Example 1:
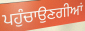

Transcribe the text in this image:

ਪਹੁੰਚਾਉਣਗੀਆਂ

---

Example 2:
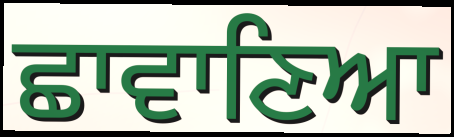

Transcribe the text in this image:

ਛਾਵਾਣਿਆ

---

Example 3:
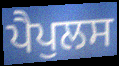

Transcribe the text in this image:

ਪੈਪੁਲਸ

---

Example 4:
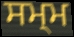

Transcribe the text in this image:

ਸਮ੍ਮ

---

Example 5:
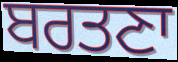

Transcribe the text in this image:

ਬਰਤਣਾ